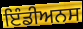
ਇੰਡੀਅਨਸ